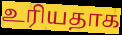
உரியதாக